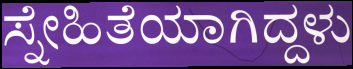
ಸ್ನೇಹಿತೆಯಾಗಿದ್ದಳು